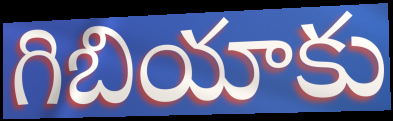
గిబియాకు